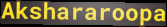
Akshararoopa